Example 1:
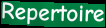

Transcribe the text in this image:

Repertoire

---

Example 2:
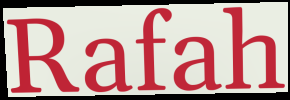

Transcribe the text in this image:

Rafah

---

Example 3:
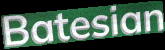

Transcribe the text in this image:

Batesian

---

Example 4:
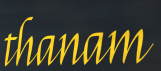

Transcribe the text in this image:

thanam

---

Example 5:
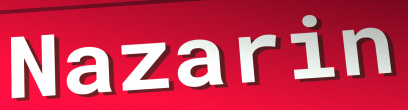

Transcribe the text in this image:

Nazarin